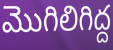
మొగిలిగిద్ద